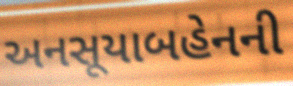
અનસૂયાબહેનની